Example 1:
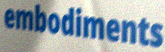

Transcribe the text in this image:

embodiments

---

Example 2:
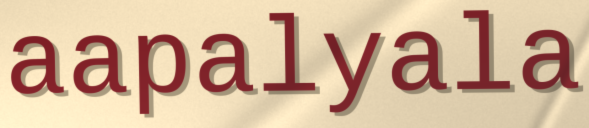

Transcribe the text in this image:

aapalyala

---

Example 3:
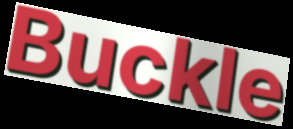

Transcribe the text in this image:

Buckle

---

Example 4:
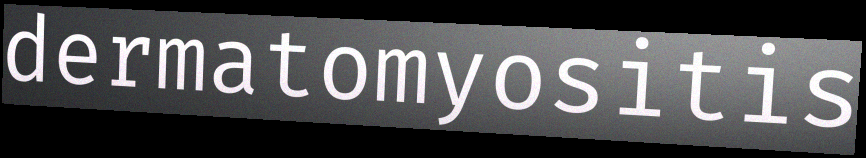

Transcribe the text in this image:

dermatomyositis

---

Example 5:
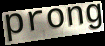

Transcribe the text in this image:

prong